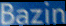
Bazin